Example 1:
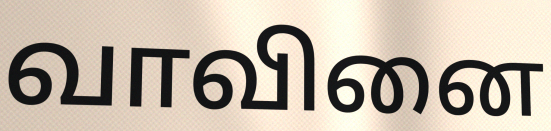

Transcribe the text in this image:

வாவினை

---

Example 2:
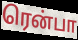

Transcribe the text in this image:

ரென்பா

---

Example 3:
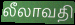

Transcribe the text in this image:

லீலாவதி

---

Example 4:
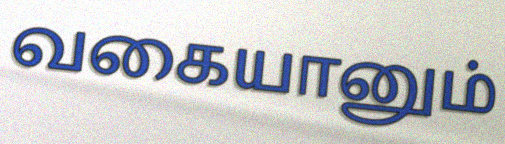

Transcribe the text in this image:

வகையானும்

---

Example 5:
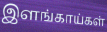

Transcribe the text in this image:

இளங்காய்கள்